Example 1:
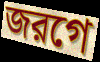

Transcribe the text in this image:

জরগে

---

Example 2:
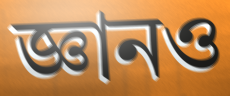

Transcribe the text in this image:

জ্ঞানও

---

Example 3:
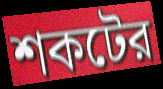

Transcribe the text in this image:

শকটের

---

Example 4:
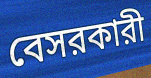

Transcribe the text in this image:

বেসরকারী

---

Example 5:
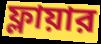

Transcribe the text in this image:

ফ্লায়ার